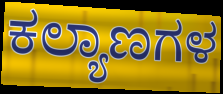
ಕಲ್ಯಾಣಗಳ